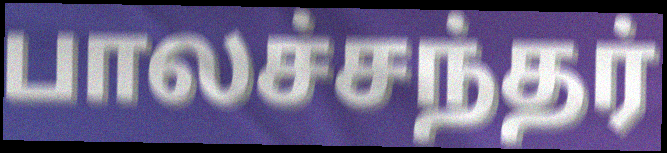
பாலச்சந்தர்